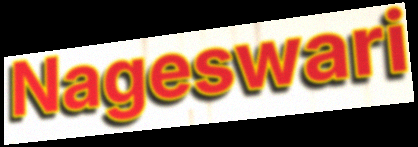
Nageswari